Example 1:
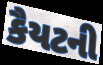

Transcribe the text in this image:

કૈયટની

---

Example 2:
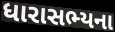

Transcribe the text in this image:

ધારાસભ્યના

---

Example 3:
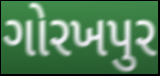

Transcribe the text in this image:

ગોરખપુર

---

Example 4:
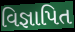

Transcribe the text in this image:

વિજ્ઞાપિત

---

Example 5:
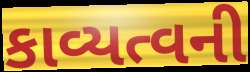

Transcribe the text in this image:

કાવ્યત્વની